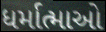
ધર્માત્માઓ